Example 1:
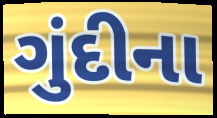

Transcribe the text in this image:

ગુંદીના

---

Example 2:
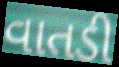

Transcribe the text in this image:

વાતડી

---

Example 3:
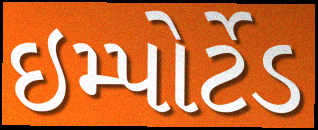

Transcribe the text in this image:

ઇમ્પોર્ટેડ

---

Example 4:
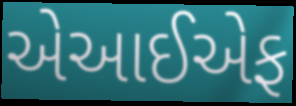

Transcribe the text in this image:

એઆઈએફ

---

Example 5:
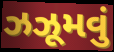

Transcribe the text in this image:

ઝઝૂમવું